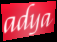
adya